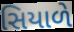
સિયાળે